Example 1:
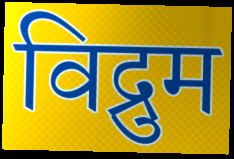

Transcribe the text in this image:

विद्रुम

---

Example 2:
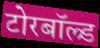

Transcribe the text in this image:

टोरबॉल्ड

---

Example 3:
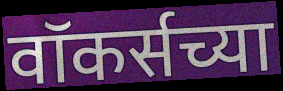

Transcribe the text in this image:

वॉकर्सच्या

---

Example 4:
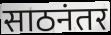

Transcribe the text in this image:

साठनंतर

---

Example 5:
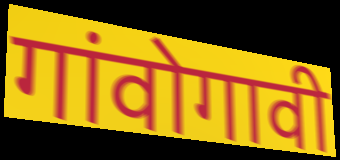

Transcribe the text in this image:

गांवोगावी